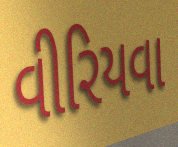
વીરિયવા